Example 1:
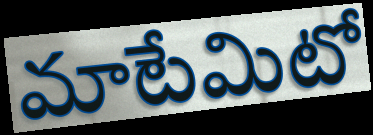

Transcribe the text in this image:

మాటేమిటో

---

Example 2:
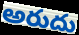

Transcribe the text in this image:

అరుదు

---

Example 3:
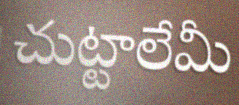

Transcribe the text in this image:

చుట్టాలేమీ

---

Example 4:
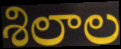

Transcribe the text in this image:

శిలాల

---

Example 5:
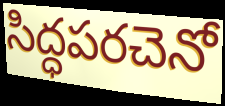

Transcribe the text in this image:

సిద్ధపరచెనో